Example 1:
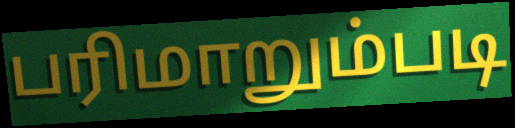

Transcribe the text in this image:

பரிமாறும்படி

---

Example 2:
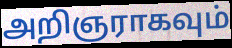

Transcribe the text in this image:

அறிஞராகவும்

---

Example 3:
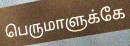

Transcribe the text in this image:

பெருமாளுக்கே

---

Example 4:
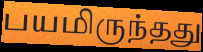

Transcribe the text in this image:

பயமிருந்தது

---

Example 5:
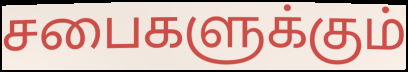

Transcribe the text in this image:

சபைகளுக்கும்